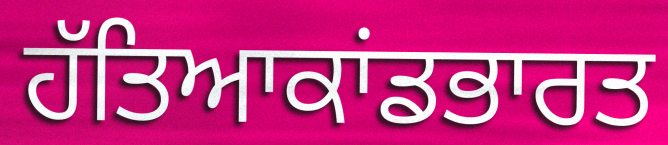
ਹੱਤਿਆਕਾਂਡਭਾਰਤ